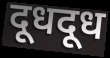
दूधदूध